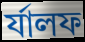
র্যালফ